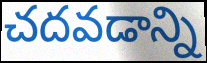
చదవడాన్ని